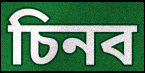
চিনব